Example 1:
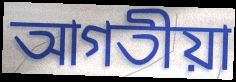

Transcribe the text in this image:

আগতীয়া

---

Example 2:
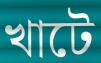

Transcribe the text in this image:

খাটে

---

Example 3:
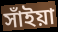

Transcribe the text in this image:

সাঁইয়া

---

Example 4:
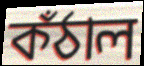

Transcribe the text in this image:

কঁঠাল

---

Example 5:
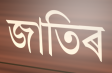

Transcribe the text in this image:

জাতিৰ